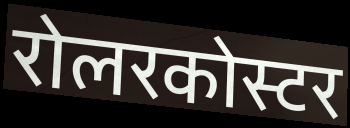
रोलरकोस्टर